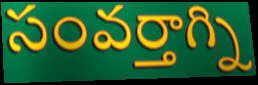
సంవర్తాగ్ని